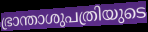
ഭ്രാന്താശുപത്രിയുടെ